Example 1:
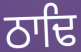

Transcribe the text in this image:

ਠਾਢਿ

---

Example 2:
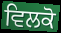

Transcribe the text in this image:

ਵਿਲਕੋ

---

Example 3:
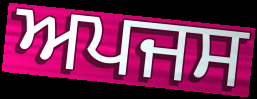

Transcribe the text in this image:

ਅਪਜਸ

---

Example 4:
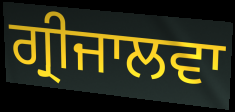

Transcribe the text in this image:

ਗ੍ਰੀਜਾਲਵਾ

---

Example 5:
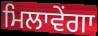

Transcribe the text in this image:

ਮਿਲਾਵੇਂਗਾ